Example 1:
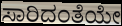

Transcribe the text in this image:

ಸಾರಿದಂತೆಯೇ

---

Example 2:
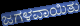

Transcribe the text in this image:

ಜಗಳವಾಯಿತು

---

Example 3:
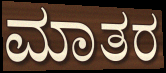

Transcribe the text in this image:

ಮಾತರ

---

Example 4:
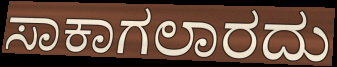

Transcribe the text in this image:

ಸಾಕಾಗಲಾರದು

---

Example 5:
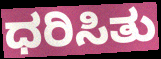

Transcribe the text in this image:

ಧರಿಸಿತು